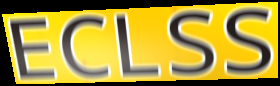
ECLSS